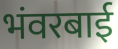
भंवरबाई